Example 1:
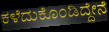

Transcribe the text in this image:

ಕಳೆದುಕೊಂಡಿದ್ದೇನೆ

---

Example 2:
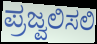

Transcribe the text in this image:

ಪ್ರಜ್ವಲಿಸಲಿ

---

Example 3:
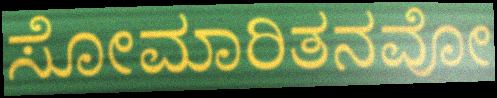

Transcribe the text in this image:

ಸೋಮಾರಿತನವೋ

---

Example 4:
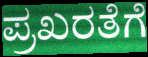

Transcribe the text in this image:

ಪ್ರಖರತೆಗೆ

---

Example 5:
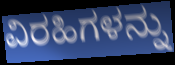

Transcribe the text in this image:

ವಿರಹಿಗಳನ್ನು